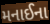
મનાઈના